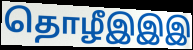
தொழீஇஇஇ